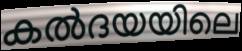
കൽദയയിലെ